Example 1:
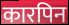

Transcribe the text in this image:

कारपिन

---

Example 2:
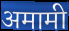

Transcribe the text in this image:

अमामी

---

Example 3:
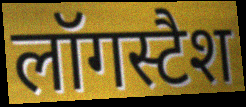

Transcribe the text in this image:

लॉगस्टैश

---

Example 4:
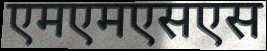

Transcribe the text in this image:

एमएमएसएस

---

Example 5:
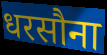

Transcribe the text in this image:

धरसौना